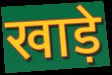
खाड़े